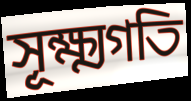
সূক্ষ্মগতি